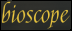
bioscope